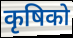
कृषिको